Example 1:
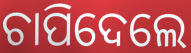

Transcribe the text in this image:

ଚାପିଦେଲେ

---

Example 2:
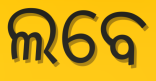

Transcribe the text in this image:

ଲବେ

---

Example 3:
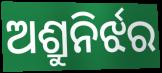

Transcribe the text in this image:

ଅଶ୍ରୁନିର୍ଝର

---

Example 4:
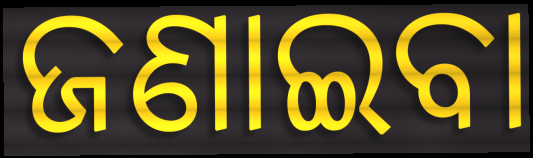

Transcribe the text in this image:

ଜଣାଇବା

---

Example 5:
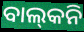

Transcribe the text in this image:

ବାଲ୍‍କନି